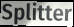
Splitter